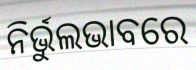
ନିର୍ଭୁଲଭାବରେ